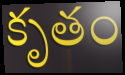
కృతం